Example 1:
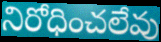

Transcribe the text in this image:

నిరోధించలేవు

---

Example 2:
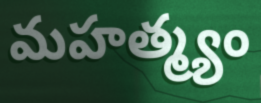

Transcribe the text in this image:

మహత్మ్యం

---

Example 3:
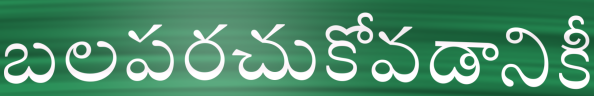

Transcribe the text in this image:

బలపరచుకోవడానికీ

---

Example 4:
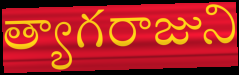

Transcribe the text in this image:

త్యాగరాజుని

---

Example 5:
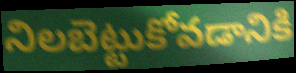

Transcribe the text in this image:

నిలబెట్టుకోవడానికి